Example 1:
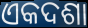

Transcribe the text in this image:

ଏକଦଶା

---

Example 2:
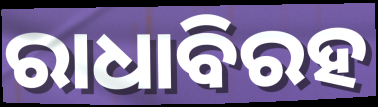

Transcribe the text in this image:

ରାଧାବିରହ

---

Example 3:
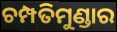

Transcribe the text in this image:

ଚମ୍ପତିମୁଣ୍ଡାର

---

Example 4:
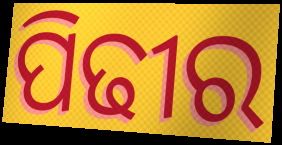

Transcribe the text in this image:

ପିଢୀର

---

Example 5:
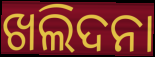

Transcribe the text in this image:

ଖଲିଦନା